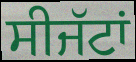
ਸੀਜੱਟਾਂ